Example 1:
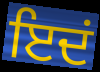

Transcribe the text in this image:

ਇਦਂ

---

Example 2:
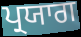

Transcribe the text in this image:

ਪ੍ਰਯਾਗ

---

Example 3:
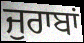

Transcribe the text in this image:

ਜੁਰਾਬਾਂ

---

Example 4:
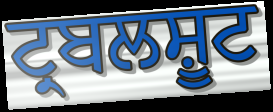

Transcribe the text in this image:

ਟ੍ਰਬਲਸ਼ੂਟ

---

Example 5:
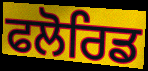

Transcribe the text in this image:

ਫਲੋਰਿਡ